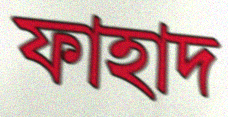
ফাহাদ